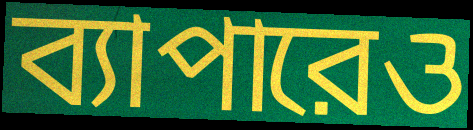
ব্যাপারেও